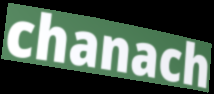
chanach